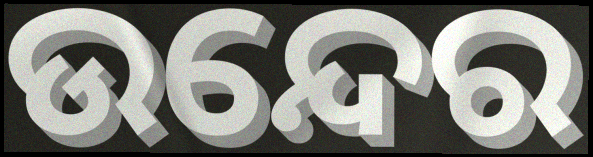
ଉନ୍ଦେର